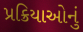
પ્રક્રિયાઓનું